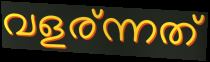
വളര്ന്നത്